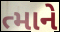
ત્માને